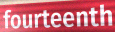
fourteenth